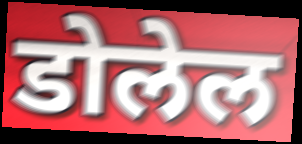
डोलेल